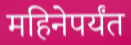
महिनेपर्यंत